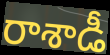
రాశాడీ